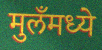
मुलँमध्ये